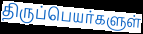
திருப்பெயர்களுள்